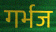
गर्भज